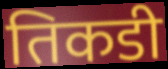
तिकडी